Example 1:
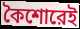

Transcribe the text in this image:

কৈশোরেই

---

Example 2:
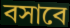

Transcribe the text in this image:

বসাবে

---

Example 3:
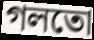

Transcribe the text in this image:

গলতো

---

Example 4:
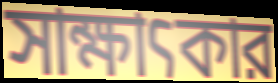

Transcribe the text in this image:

সাক্ষাৎকার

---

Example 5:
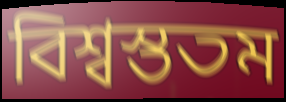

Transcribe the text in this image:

বিশ্বস্ততম